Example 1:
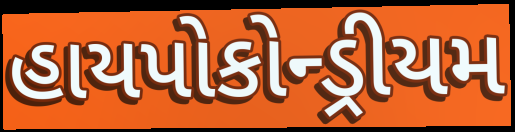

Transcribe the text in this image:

હાયપોકોન્ડ્રીયમ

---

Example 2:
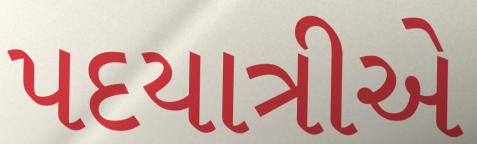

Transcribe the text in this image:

પદયાત્રીએ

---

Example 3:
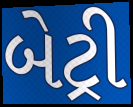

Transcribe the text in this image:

બેટ્રી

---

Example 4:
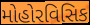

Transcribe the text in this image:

મોહોરવિસિક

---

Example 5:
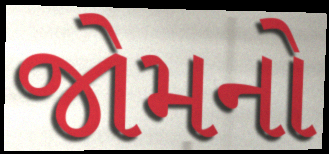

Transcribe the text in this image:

જોમનો